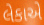
લેકાએ